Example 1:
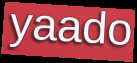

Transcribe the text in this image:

yaado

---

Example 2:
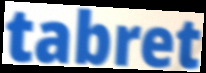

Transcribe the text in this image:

tabret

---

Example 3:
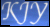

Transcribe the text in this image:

KJY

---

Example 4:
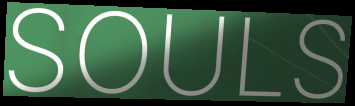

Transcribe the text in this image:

SOULS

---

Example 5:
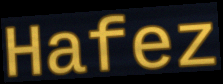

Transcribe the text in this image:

Hafez